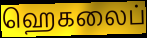
ஹெகலைப்